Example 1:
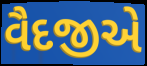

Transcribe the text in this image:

વૈદજીએ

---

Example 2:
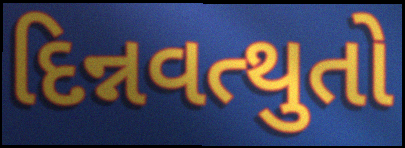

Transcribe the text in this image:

દિન્નવત્થુતો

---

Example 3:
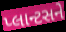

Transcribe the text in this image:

પ્લાન્ટસને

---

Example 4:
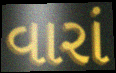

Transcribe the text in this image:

વારાં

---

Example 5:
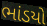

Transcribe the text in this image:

ભાંડયો